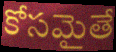
కోసమైతే